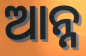
ଆନ୍ନ